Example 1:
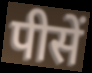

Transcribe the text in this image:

पीसें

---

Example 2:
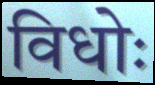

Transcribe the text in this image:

विधोः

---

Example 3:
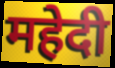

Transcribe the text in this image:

महेदी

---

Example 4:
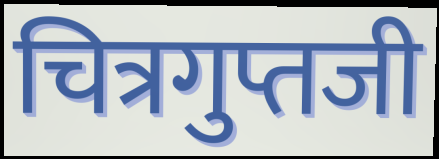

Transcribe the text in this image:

चित्रगुप्तजी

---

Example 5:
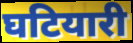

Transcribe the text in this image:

घटियारी